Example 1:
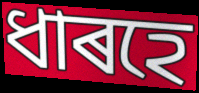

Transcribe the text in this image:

ধাৰহে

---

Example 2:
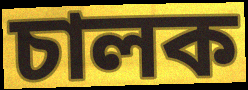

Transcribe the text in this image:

চালক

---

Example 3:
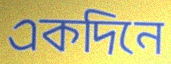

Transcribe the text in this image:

একদিনে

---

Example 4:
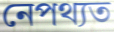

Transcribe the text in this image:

নেপথ্যত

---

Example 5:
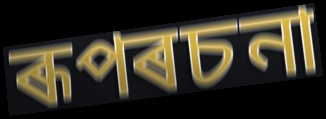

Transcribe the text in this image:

ৰূপৰচনা